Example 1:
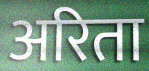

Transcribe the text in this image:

अरिता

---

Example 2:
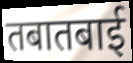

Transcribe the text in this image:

तबातबाई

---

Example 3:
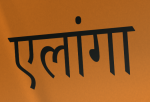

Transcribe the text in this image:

एलांगा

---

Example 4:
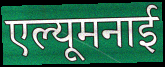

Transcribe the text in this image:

एल्यूमनाई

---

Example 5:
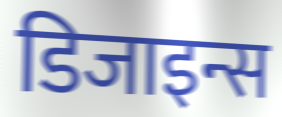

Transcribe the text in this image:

डिजाइन्स